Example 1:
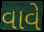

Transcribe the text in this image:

વાવે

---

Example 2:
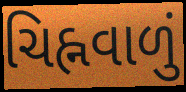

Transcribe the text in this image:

ચિહ્નવાળું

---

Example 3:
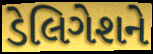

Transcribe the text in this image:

ડેલિગેશને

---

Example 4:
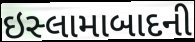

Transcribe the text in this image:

ઇસ્લામાબાદની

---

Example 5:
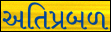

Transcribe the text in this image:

અતિપ્રબળ